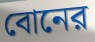
বোনের